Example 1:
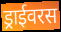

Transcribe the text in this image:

ड्राईवरस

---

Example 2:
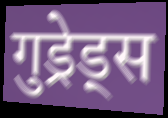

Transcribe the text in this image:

गुड्रेड्स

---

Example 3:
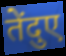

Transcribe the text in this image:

तेंदुए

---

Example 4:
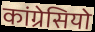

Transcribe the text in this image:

कांग्रेसियो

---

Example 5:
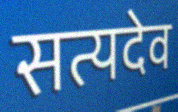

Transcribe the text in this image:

सत्यदेव